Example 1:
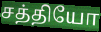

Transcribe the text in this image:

சத்தியோ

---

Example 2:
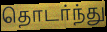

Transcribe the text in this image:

தொடர்ந்து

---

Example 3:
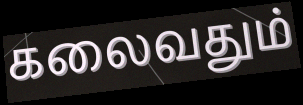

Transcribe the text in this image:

கலைவதும்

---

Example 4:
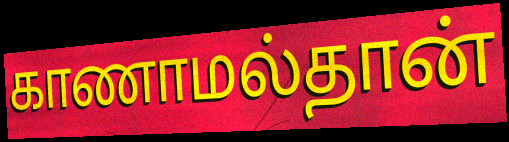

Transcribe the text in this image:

காணாமல்தான்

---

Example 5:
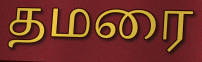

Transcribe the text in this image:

தமரை